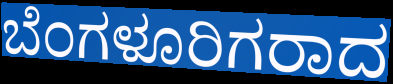
ಬೆಂಗಳೂರಿಗರಾದ